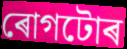
ৰোগটোৰ